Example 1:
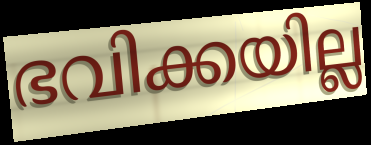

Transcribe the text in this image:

ഭവിക്കയില്ല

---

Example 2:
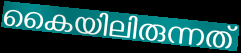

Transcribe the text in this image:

കൈയിലിരുന്നത്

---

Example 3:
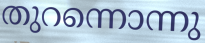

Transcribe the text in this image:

തുറന്നൊന്നു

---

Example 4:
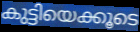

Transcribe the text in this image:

കുട്ടിയെക്കൂടെ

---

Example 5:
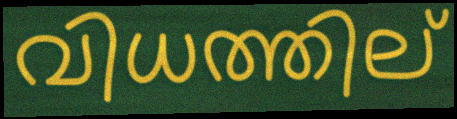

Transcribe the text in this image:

വിധത്തില്